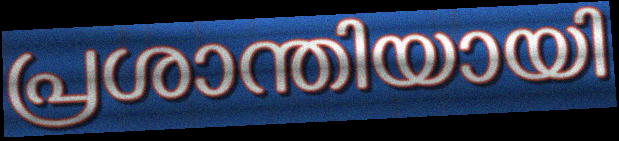
പ്രശാന്തിയായി